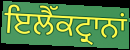
ਇਲੈੱਕਟ੍ਰਾਨਾਂ